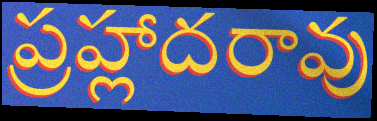
ప్రహ్లాదరావు